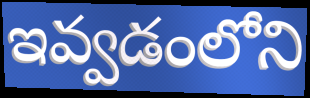
ఇవ్వడంలోని